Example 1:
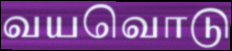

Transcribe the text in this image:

வயவொடு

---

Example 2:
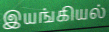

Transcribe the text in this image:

இயங்கியல்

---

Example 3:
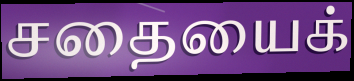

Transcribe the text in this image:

சதையைக்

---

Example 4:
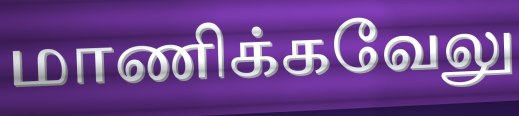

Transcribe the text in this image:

மாணிக்கவேலு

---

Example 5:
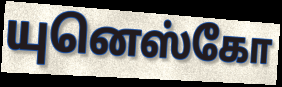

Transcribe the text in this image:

யுனெஸ்கோ